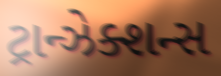
ટ્રાન્ઝેક્શન્સ